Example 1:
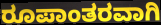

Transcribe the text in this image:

ರೂಪಾಂತರವಾಗಿ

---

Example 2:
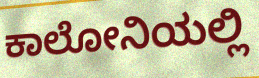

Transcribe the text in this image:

ಕಾಲೋನಿಯಲ್ಲಿ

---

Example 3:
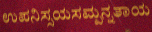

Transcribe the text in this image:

ಉಪನಿಸ್ಸಯಸಮ್ಪನ್ನತಾಯ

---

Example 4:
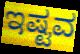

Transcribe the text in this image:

ಇಷ್ಟವ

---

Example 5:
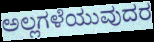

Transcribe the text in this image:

ಅಲ್ಲಗಳೆಯುವುದರ